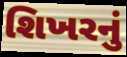
શિખરનું